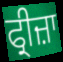
ਫ੍ਰੀਜ਼ਾ